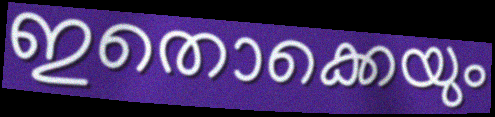
ഇതൊക്കെയും